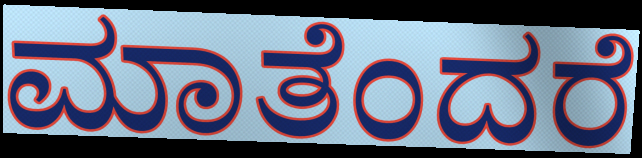
ಮಾತೆಂದರೆ